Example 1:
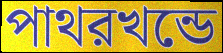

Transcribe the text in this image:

পাথরখন্ডে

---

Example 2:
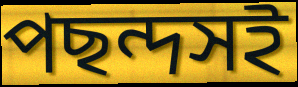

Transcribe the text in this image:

পছন্দসই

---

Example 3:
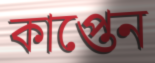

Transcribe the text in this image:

কাপ্তেন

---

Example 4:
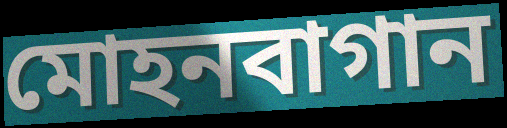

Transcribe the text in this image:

মোহনবাগান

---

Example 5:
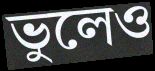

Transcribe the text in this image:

ভুলেও